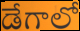
డేగాలో